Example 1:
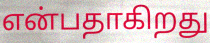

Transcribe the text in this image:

என்பதாகிறது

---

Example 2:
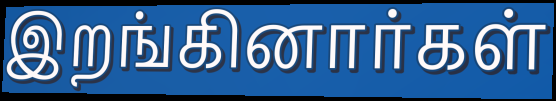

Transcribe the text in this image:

இறங்கினார்கள்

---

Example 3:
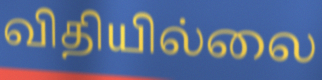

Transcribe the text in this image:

விதியில்லை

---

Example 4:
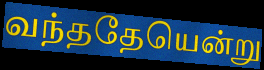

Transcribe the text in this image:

வந்ததேயென்று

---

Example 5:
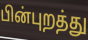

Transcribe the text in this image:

பின்புறத்து